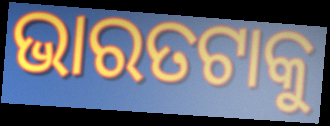
ଭାରତଟାକୁ